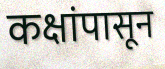
कक्षांपासून